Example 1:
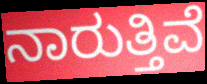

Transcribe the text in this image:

ನಾರುತ್ತಿವೆ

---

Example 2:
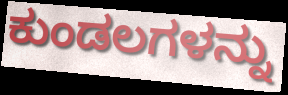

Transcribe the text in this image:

ಕುಂಡಲಗಳನ್ನು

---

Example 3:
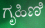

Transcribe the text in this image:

ಗೃಹಿಣಿ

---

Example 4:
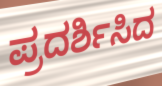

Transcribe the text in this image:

ಪ್ರದರ್ಶಿಸಿದ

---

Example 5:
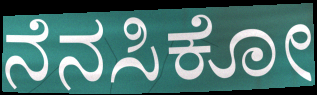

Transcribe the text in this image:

ನೆನಸಿಕೋ